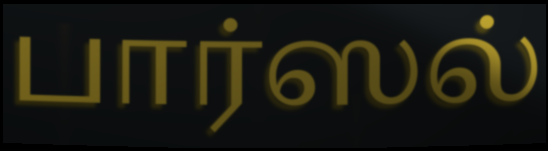
பார்ஸல்